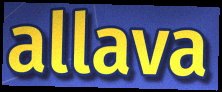
allava